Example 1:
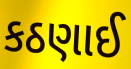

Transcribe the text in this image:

કઠણાઈ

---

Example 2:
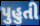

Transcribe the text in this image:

પુહુતી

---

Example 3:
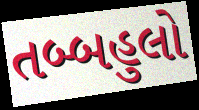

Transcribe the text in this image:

તબ્બહુલો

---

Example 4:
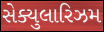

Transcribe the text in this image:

સેક્યુલારિઝમ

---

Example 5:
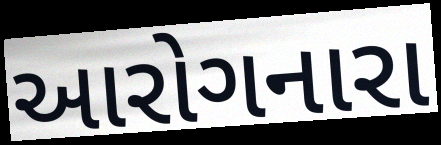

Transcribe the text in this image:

આરોગનારા